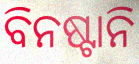
ବିନଷ୍ଟାନି